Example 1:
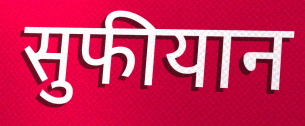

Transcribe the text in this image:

सुफीयान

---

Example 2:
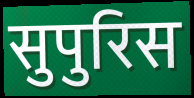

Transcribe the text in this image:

सुपुरिस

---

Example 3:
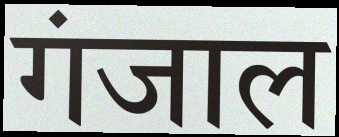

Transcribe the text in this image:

गंजाल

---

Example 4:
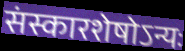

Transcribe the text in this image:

संस्कारशेषोऽन्यः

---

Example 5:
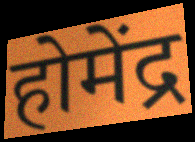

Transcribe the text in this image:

होमेंद्र